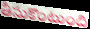
తీసుకొంటుంది